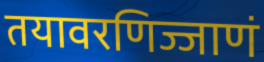
तयावरणिज्जाणं